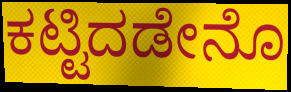
ಕಟ್ಟಿದಡೇನೊ